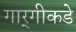
गार्गीकडे